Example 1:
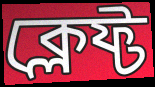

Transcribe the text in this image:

ক্লেফ্ট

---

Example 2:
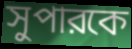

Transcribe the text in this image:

সুপারকে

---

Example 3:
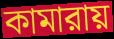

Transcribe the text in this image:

কামারায়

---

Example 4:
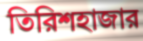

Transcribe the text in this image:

তিরিশহাজার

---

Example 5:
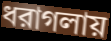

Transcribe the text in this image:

ধরাগলায়